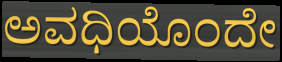
ಅವಧಿಯೊಂದೇ